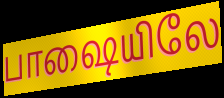
பாஷையிலே